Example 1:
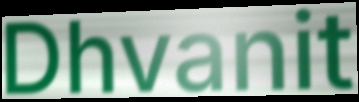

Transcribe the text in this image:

Dhvanit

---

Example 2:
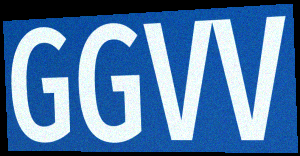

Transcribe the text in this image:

GGVV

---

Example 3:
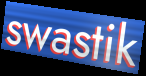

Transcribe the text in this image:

swastik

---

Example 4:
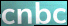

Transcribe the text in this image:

cnbc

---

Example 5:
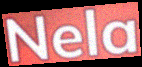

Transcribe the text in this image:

Nela